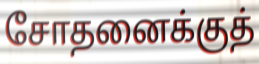
சோதனைக்குத்